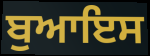
ਬੁਆਇਸ